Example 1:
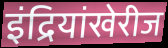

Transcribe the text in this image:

इंद्रियांखेरीज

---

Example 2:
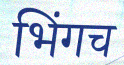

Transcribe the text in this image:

भिंगच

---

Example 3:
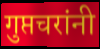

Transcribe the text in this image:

गुप्तचरांनी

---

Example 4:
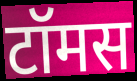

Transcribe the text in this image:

टॉमस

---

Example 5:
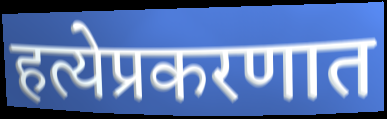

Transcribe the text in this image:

हत्येप्रकरणात